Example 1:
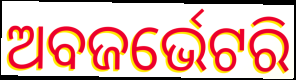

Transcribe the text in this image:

ଅବଜର୍ଭେଟରି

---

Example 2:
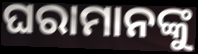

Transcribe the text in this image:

ଘରାମାନଙ୍କୁ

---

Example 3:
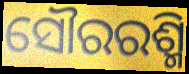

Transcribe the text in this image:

ସୌରରଶ୍ମି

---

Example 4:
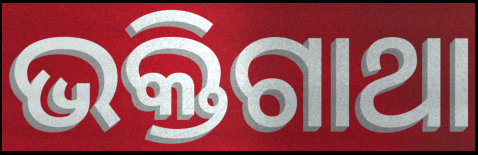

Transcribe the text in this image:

ଭକ୍ତିଗାଥା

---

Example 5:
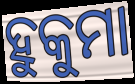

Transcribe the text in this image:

ହୁକୁମା